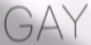
GAY